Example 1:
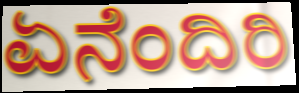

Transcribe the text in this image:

ಏನೆಂದಿರಿ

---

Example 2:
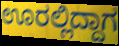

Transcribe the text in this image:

ಊರಲ್ಲಿದ್ದಾಗ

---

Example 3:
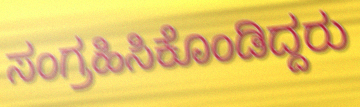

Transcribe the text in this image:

ಸಂಗ್ರಹಿಸಿಕೊಂಡಿದ್ದರು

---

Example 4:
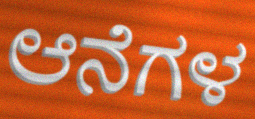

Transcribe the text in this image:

ಆನೆಗಳ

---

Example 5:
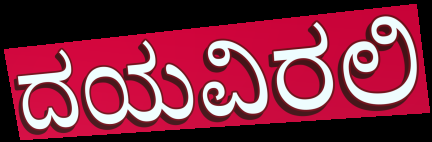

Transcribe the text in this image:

ದಯವಿರಲಿ